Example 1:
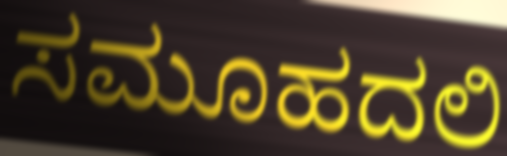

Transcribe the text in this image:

ಸಮೂಹದಲಿ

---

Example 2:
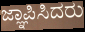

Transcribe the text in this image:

ಜ್ಞಾಪಿಸಿದರು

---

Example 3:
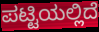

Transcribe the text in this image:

ಪಟ್ಟಿಯಲ್ಲಿದೆ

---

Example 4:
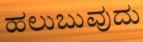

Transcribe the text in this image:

ಹಲುಬುವುದು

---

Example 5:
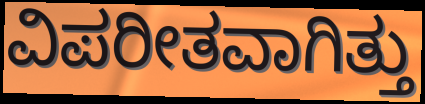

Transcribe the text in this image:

ವಿಪರೀತವಾಗಿತ್ತು